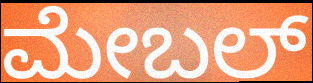
ಮೇಬಲ್